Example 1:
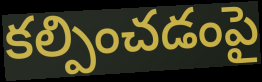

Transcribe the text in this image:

కల్పించడంపై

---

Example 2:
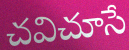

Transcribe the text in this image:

చవిచూసే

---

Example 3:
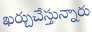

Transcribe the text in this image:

ఖర్చుచేస్తున్నారు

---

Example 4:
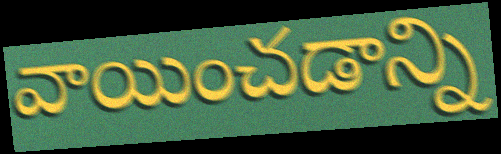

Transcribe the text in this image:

వాయించడాన్ని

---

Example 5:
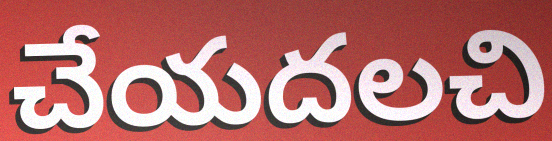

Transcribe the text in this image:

చేయదలచి